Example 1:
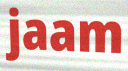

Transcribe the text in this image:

jaam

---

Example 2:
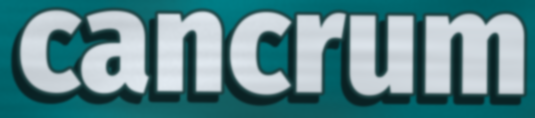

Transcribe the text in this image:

cancrum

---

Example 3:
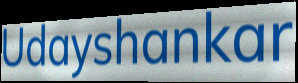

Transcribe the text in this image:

Udayshankar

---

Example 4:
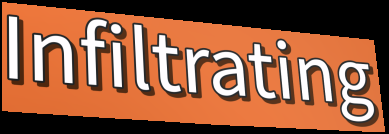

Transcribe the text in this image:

Infiltrating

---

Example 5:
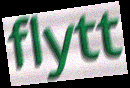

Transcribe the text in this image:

flytt